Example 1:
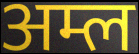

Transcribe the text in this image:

अम्ल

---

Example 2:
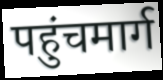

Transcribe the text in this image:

पहुंचमार्ग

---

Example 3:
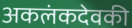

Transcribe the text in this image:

अकलंकदेवकी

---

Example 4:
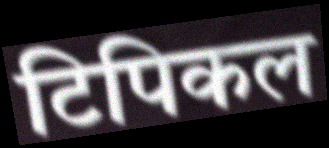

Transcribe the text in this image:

टिपिकल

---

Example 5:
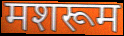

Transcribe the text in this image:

मशरूम